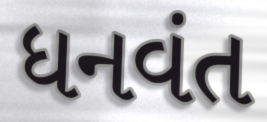
ધનવંત